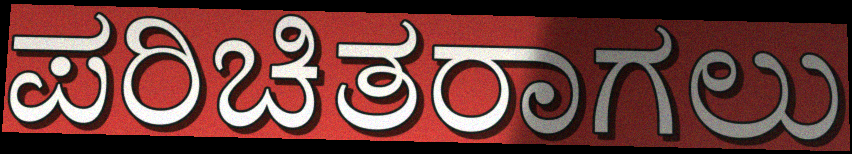
ಪರಿಚಿತರಾಗಲು